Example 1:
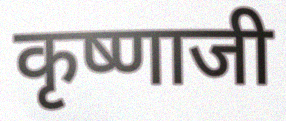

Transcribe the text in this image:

कृष्णाजी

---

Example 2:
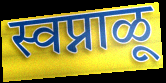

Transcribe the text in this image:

स्वप्नाळू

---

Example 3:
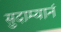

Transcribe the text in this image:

सुदाम्यानं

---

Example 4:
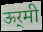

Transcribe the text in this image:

ऊर्मी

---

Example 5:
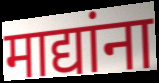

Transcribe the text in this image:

माद्यांना